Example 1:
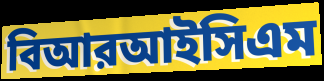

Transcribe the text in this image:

বিআরআইসিএম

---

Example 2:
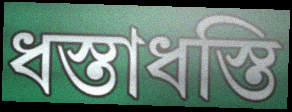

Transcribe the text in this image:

ধস্তাধস্তি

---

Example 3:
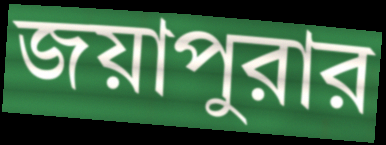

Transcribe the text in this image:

জয়াপুরার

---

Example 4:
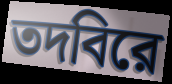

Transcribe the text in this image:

তদবিরে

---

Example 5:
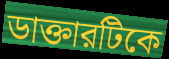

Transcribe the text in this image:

ডাক্তারটিকে